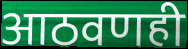
आठवणही